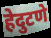
हेदुटणे